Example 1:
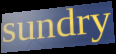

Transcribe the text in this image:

sundry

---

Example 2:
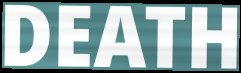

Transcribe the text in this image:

DEATH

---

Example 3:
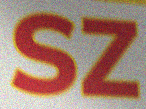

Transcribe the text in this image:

SZ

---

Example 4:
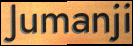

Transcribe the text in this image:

Jumanji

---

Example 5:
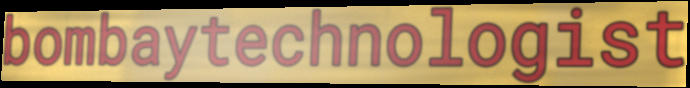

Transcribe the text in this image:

bombaytechnologist